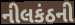
નીલકંઠની